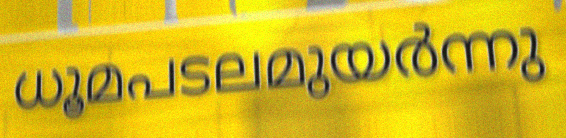
ധൂമപടലമുയർന്നു